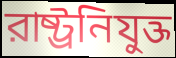
রাষ্ট্রনিযুক্ত